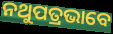
ନଥୁପତ୍ରଭାବେ